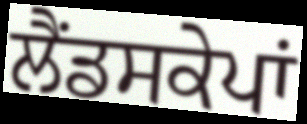
ਲੈਂਡਸਕੇਪਾਂ